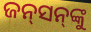
ଜନ୍‍ସନ୍‍ଙ୍କୁ